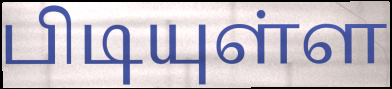
பிடியுள்ள